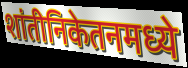
शांतीनिकेतनमध्ये